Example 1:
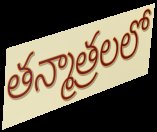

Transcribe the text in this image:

తన్మాత్రలలో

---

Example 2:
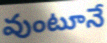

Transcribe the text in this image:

వుంటూనే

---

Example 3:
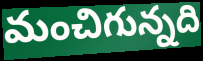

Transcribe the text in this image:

మంచిగున్నది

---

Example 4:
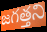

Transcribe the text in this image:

జగత్తని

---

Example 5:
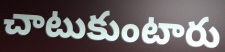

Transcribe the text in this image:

చాటుకుంటారు